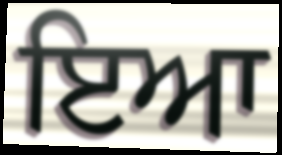
ਇਆ